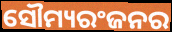
ସୌମ୍ୟରଂଜନର